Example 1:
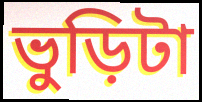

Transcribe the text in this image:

ভুড়িটা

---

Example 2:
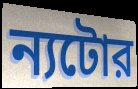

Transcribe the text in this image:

ন্যটোর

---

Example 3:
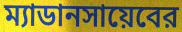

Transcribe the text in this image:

ম্যাডানসায়েবের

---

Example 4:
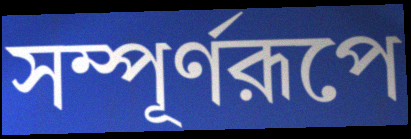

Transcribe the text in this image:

সম্পূর্ণরূপে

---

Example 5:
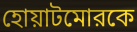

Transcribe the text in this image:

হোয়াটমোরকে